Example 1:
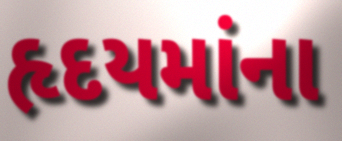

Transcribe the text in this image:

હૃદયમાંના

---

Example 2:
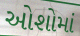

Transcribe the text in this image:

ઓશોમાં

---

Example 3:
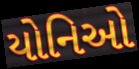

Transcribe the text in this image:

યોનિઓ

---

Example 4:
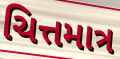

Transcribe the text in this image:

ચિત્તમાત્ર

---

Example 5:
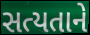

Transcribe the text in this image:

સત્યતાને